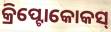
କ୍ରିପ୍ଟୋକୋକସ୍